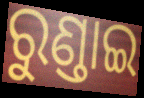
ରୁଣ୍ଡାଇ